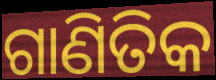
ଗାଣିତିକ